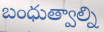
బంధుత్వాల్ని